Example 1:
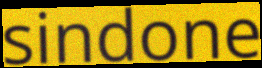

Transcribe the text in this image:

sindone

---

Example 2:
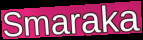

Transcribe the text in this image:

Smaraka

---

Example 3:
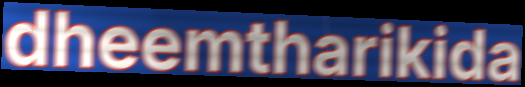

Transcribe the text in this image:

dheemtharikida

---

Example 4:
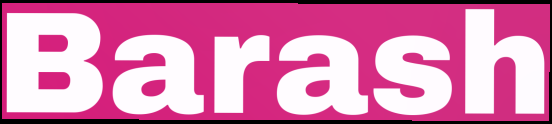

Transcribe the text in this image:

Barash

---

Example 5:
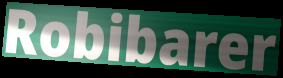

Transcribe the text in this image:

Robibarer